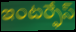
ఇంటర్ఫేస్